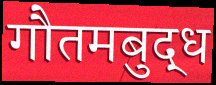
गौतमबुद्ध